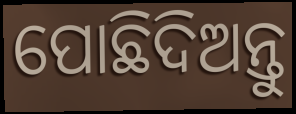
ପୋଛିଦିଅନ୍ତୁ